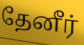
தேனீர்